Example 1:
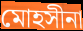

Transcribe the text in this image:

মোহসীনা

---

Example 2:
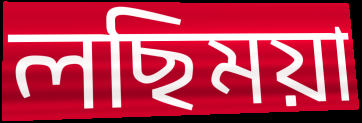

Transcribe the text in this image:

লছিময়া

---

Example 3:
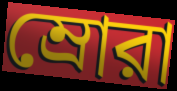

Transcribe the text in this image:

ম্রোরা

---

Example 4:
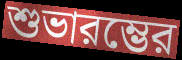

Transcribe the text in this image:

শুভারম্ভের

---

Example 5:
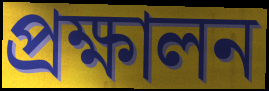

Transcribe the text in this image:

প্রক্ষালন